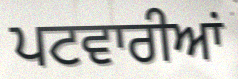
ਪਟਵਾਰੀਆਂ